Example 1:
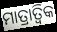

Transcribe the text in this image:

ମାତ୍ରାତ୍ଵିକ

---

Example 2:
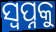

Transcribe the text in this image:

ସ୍ଵପ୍ନକୁ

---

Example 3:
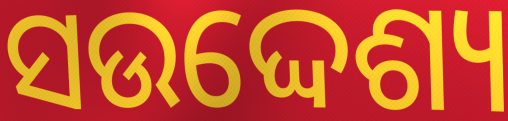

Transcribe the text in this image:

ସଉଦ୍ଦେଶ୍ୟ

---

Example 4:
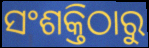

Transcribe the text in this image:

ସଂଶକ୍ତିଠାରୁ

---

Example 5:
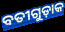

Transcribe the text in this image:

ବତୀଗୁଡ଼ାକ